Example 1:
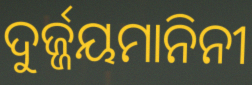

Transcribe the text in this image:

ଦୁର୍ଜ୍ଜୟମାନିନୀ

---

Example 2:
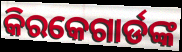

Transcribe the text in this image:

କିରକେଗାର୍ଡଙ୍କ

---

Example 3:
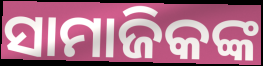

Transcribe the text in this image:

ସାମାଜିକଙ୍କ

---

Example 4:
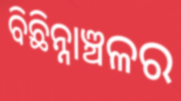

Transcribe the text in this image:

ବିଛିନ୍ନାଞ୍ଚଳର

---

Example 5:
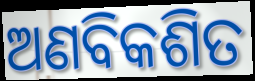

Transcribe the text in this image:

ଅଣବିକଶିତ